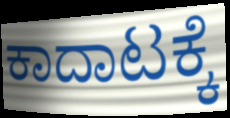
ಕಾದಾಟಕ್ಕೆ